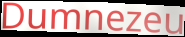
Dumnezeu